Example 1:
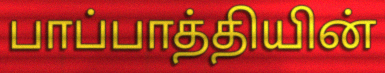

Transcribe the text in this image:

பாப்பாத்தியின்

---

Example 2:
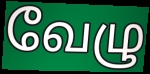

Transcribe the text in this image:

வேழு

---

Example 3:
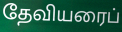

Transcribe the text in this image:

தேவியரைப்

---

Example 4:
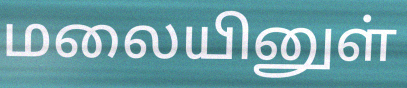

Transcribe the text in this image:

மலையினுள்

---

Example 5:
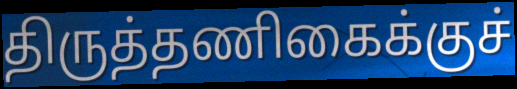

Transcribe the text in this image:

திருத்தணிகைக்குச்